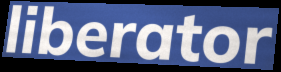
liberator